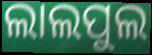
ଲାଲପୁଲ